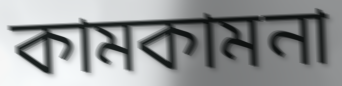
কামকামনা